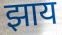
झाय